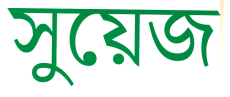
সুয়েজ